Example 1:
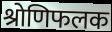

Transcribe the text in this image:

श्रोणिफलक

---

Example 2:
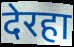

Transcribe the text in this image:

देरहा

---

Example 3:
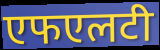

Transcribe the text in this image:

एफएलटी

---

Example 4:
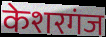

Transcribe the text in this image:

केशरगंज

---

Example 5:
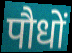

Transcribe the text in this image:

पौधों